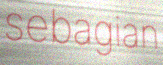
sebagian